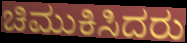
ಚಿಮುಕಿಸಿದರು